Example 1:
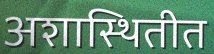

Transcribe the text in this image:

अशास्थितीत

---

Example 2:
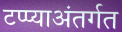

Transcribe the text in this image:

टप्प्याअंतर्गत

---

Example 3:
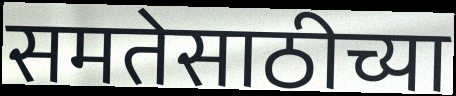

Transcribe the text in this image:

समतेसाठीच्या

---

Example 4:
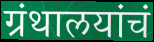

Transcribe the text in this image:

ग्रंथालयांचं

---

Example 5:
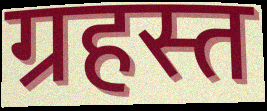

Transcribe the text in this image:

ग्रहस्त